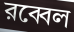
রব্বেল